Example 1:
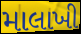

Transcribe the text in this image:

માલાખી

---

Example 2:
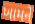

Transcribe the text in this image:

ખામને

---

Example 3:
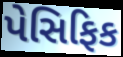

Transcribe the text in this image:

પેસિફિક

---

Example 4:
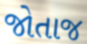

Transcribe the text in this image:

જોતાજ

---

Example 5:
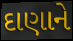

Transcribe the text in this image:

દાણાને